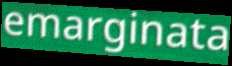
emarginata